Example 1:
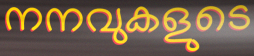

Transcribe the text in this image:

നനവുകളുടെ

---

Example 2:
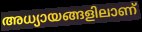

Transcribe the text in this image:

അധ്യായങ്ങളിലാണ്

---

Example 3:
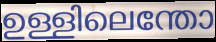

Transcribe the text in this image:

ഉള്ളിലെന്തോ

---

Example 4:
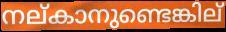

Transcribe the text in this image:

നല്കാനുണ്ടെങ്കില്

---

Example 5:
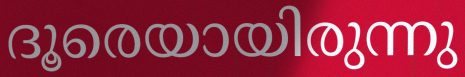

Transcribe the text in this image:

ദൂരെയായിരുന്നു